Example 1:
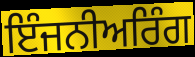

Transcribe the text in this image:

ਇੰਜਨੀਅਰਿੰਗ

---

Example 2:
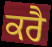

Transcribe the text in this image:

ਕਰੈ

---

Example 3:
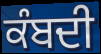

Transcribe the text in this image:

ਕੰਬਦੀ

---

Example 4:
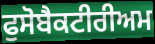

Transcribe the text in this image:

ਫੁਸੋਬੈਕਟੀਰੀਅਮ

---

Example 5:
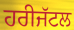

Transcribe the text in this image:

ਹਰੀਜੱਟਲ